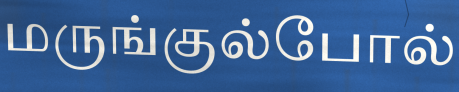
மருங்குல்போல்